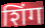
शिंग